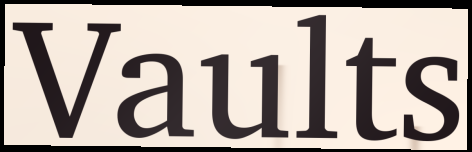
Vaults